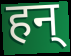
हन्